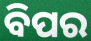
ବିପର